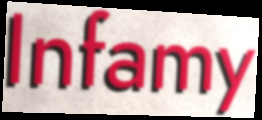
Infamy